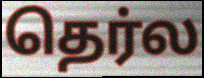
தெர்ல